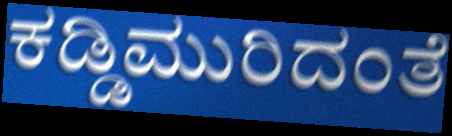
ಕಡ್ಡಿಮುರಿದಂತೆ